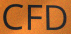
CFD